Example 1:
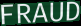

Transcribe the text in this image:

FRAUD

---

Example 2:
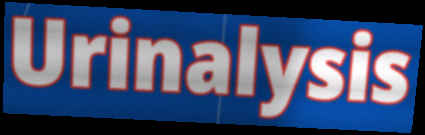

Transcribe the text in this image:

Urinalysis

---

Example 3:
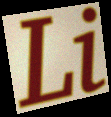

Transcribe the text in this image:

Li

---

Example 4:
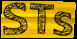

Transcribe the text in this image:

STs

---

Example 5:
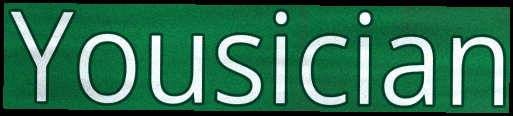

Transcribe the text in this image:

Yousician